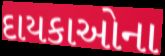
દાયકાઓના